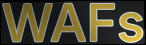
WAFs